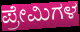
ಪ್ರೇಮಿಗಳ